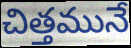
చిత్తమునే